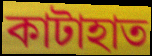
কাটাহাত